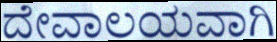
ದೇವಾಲಯವಾಗಿ